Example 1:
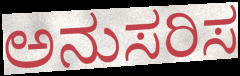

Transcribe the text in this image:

ಅನುಸರಿಸ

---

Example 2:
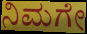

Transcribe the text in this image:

ನಿಮಗೇ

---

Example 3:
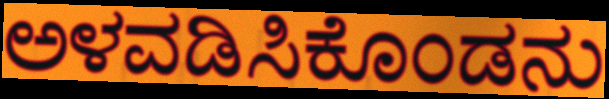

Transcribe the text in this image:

ಅಳವಡಿಸಿಕೊಂಡನು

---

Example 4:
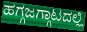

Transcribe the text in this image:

ಹಗ್ಗಜಗ್ಗಾಟದಲ್ಲಿ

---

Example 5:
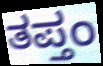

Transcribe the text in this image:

ತಪ್ತಂ